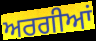
ਅਰਗੀਆਂ